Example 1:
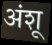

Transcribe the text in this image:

अंशू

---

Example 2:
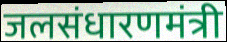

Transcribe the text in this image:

जलसंधारणमंत्री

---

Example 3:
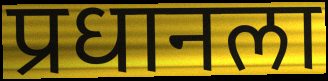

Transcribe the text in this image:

प्रधानला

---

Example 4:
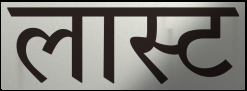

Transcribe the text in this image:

लास्ट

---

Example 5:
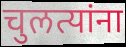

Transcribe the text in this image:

चुलत्यांना